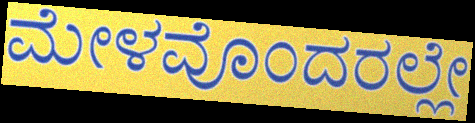
ಮೇಳವೊಂದರಲ್ಲೇ